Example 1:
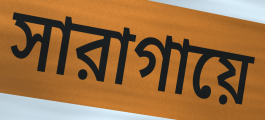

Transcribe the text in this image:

সারাগায়ে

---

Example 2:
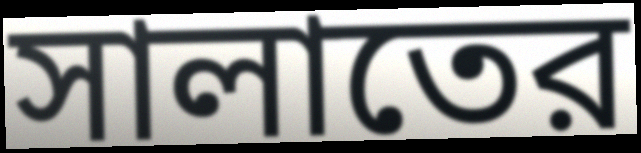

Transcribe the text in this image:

সালাতের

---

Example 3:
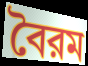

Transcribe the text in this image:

বৈরম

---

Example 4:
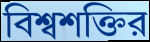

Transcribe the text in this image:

বিশ্বশক্তির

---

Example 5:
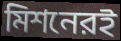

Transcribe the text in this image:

মিশনেরই